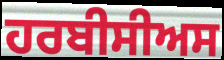
ਹਰਬੀਸੀਅਸ